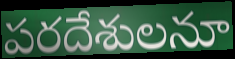
పరదేశులనూ